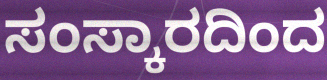
ಸಂಸ್ಕಾರದಿಂದ